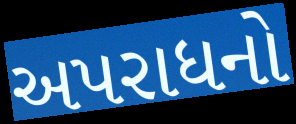
અપરાધનો